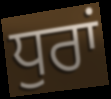
ਧੁਰਾਂ